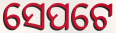
ସେପଟେ